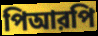
পিআরপি